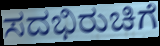
ಸದಭಿರುಚಿಗೆ